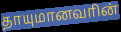
தாயுமானவரின்